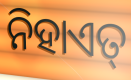
ନିହାଏତ୍